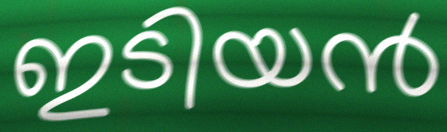
ഇടിയൻ